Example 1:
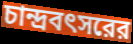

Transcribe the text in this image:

চান্দ্রবৎসরের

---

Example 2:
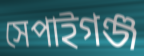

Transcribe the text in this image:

সেপাইগঞ্জ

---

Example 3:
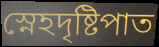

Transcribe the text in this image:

স্নেহদৃষ্টিপাত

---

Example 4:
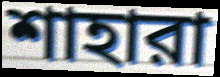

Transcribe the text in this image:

শাহারা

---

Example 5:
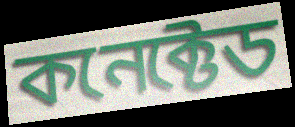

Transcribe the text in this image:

কনেক্টেড